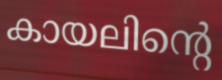
കായലിന്റെ